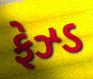
ફેઝ્ડ